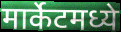
मार्केटमध्ये